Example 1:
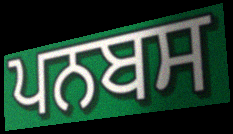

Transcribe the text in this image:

ਪਨਬਸ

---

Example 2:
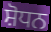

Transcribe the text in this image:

ਸ਼ੋਧਨ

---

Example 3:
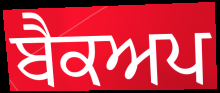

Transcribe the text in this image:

ਬੈਕਅਪ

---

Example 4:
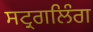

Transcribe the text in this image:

ਸਟ੍ਰਗਲਿੰਗ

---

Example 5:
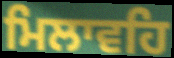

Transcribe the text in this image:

ਮਿਲਾਵਹਿ